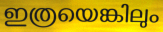
ഇത്രയെങ്കിലും